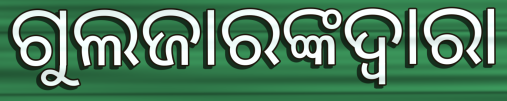
ଗୁଲଜାରଙ୍କଦ୍ୱାରା